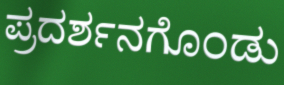
ಪ್ರದರ್ಶನಗೊಂಡು